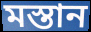
মস্তান